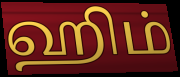
ஹிம்